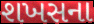
શખસના